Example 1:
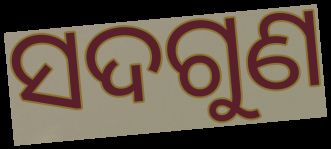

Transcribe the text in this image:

ସଦଗୁଣ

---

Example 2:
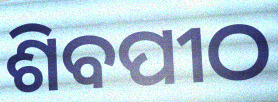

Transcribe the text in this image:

ଶିବପୀଠ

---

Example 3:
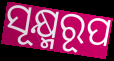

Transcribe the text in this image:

ସୂକ୍ଷ୍ମରୂପ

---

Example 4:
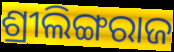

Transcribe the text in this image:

ଶ୍ରୀଲିଙ୍ଗରାଜ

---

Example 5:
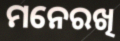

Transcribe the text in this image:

ମନେରଖି